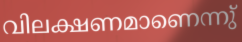
വിലക്ഷണമാണെന്നു്